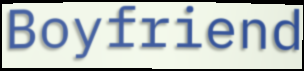
Boyfriend